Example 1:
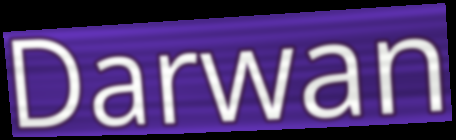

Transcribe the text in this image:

Darwan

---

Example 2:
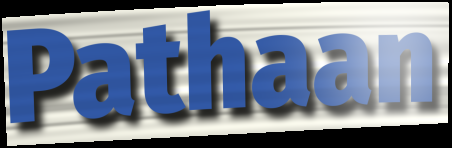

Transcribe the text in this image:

Pathaan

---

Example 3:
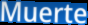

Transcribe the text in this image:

Muerte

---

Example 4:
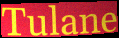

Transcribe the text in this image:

Tulane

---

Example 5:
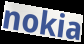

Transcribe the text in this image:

nokia